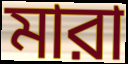
মারা